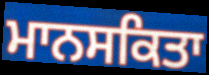
ਮਾਨਸਕਿਤਾ